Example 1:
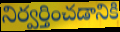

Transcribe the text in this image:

నిర్వర్తించడానికి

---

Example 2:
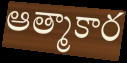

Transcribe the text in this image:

ఆత్మాకార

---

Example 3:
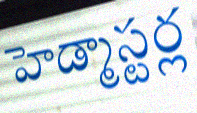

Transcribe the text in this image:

హెడ్మాస్టర్ల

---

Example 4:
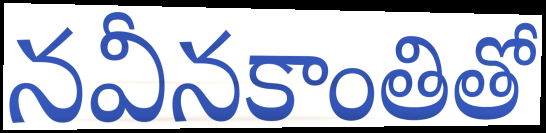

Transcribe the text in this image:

నవీనకాంతితో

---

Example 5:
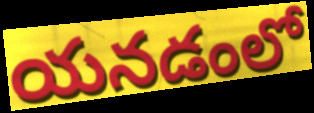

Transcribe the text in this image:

యనడంలో